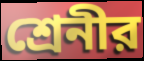
শ্রেনীর